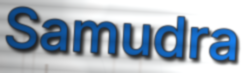
Samudra